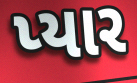
પ્યાર